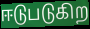
ஈடுபடுகிற